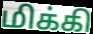
மிக்கி